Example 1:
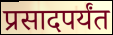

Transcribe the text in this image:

प्रसादपर्यंत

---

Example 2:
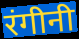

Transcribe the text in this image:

रंगीनी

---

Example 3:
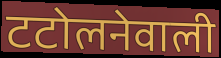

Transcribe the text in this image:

टटोलनेवाली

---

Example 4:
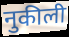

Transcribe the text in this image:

नुकीली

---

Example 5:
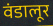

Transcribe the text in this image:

वंडालूर